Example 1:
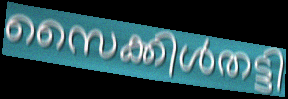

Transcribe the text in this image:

സൈക്കിൾതട്ടി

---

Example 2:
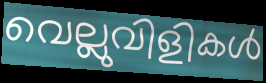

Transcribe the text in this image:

വെല്ലുവിളികൾ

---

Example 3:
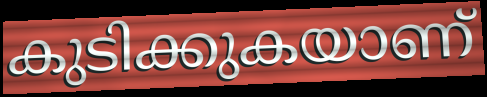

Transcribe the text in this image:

കുടിക്കുകയാണ്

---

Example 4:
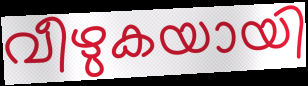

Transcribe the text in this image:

വീഴുകയായി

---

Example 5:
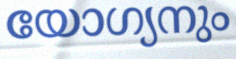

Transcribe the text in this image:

യോഗ്യനും